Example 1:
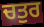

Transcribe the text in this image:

ਚਤੁਰ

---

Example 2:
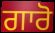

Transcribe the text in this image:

ਗਾਰੋ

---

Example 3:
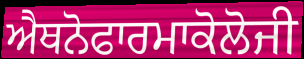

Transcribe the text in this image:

ਐਥਨੋਫਾਰਮਾਕੋਲੋਜੀ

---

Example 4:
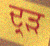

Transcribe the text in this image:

ਦ੍ਰੜ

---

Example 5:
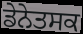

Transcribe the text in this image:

ਡੇਨੇਤਸਕ